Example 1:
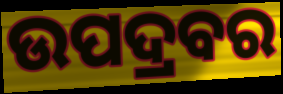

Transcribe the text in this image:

ଉପଦ୍ରବର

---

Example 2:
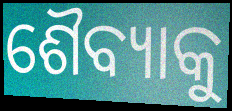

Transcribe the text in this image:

ଶୈବ୍ୟାକୁ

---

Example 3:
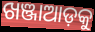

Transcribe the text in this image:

ଖଞ୍ଜାଆଡ଼କୁ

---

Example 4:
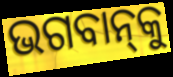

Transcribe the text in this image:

ଭଗବାନ୍‌କୁ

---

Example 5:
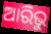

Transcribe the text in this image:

ଆରିଭୁ